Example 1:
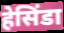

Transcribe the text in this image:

हेसिंडा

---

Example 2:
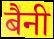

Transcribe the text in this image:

बैनी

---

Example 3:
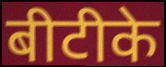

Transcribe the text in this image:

बीटीके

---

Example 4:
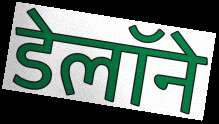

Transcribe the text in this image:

डेलॉने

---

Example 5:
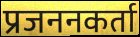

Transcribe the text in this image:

प्रजननकर्ता